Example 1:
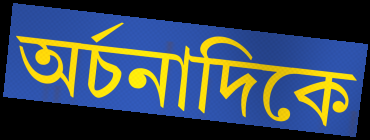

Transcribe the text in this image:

অর্চনাদিকে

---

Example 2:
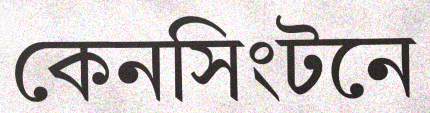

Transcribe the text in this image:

কেনসিংটনে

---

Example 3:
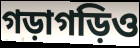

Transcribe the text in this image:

গড়াগড়িও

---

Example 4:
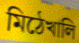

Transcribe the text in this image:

মিঠেখালি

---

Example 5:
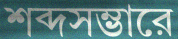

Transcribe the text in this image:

শব্দসম্ভারে